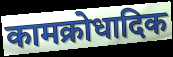
कामक्रोधादिक